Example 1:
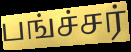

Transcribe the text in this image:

பங்ச்சர்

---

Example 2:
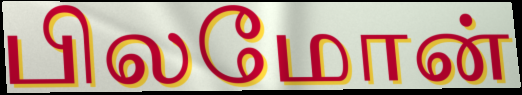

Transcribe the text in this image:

பிலமோன்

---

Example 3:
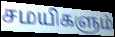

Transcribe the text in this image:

சமயிகளும்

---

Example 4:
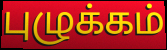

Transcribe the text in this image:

புழுக்கம்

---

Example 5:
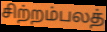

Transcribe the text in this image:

சிற்றம்பலத்